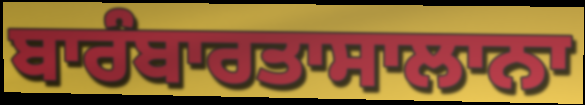
ਬਾਰੰਬਾਰਤਾਸਾਲਾਨਾ